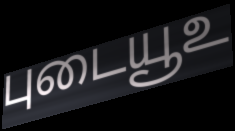
புடையூஉ